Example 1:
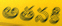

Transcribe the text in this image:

అతనకి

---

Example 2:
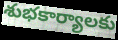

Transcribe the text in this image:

శుభకార్యాలకు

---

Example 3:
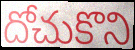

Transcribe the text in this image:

దోచుకొని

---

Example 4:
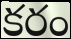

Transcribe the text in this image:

కరం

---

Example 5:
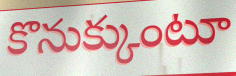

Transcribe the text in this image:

కొనుక్కుంటూ